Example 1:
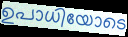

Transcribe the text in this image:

ഉപാധിയോടെ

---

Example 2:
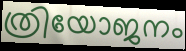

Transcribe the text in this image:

ത്രിയോജനം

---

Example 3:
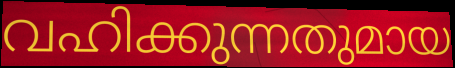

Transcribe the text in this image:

വഹിക്കുന്നതുമായ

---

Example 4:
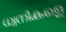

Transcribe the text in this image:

ധ്വനികളെ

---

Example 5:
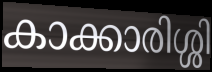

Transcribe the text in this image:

കാക്കാരിശ്ശി